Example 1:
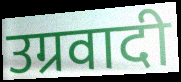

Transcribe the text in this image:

उग्रवादी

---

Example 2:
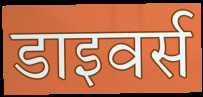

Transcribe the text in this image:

डाइवर्स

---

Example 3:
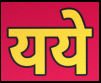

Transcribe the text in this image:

यये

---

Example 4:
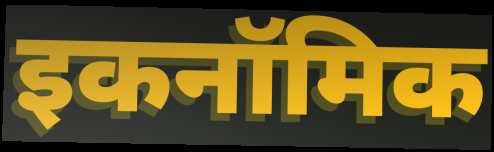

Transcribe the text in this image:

इकनॉमिक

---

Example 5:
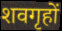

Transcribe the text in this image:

शवगृहों